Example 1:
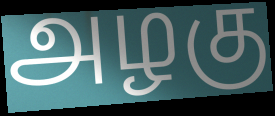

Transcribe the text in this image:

அழகு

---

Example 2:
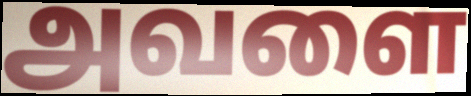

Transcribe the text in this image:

அவளை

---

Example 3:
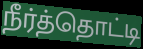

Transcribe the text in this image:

நீர்த்தொட்டி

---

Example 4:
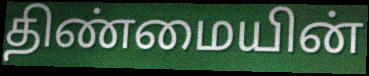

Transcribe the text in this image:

திண்மையின்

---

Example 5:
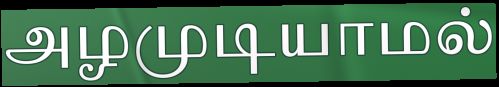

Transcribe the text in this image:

அழமுடியாமல்